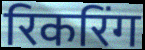
रिकरिंग